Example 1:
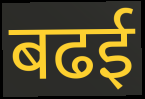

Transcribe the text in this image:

बढई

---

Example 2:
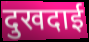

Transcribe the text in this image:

दुखदाई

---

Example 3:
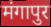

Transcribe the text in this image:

मंगापुर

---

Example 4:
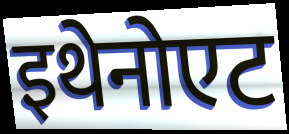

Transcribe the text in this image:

इथेनोएट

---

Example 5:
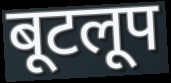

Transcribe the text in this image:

बूटलूप